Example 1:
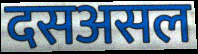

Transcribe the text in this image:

दसअसल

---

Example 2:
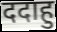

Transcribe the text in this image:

ददाहु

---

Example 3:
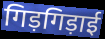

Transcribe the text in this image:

गिड़गिड़ाई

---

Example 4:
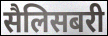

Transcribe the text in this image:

सैलिसबरी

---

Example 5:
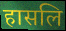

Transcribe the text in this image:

हासलि